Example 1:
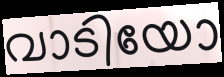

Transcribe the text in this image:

വാടിയോ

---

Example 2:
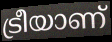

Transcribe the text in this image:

ട്രീയാണ്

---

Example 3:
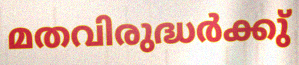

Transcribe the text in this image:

മതവിരുദ്ധർക്കു്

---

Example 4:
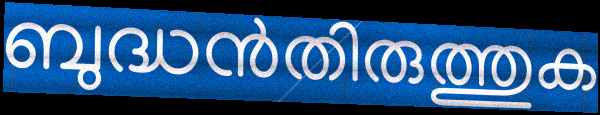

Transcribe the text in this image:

ബുദ്ധൻതിരുത്തുക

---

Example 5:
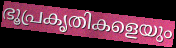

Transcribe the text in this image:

ഭൂപ്രകൃതികളെയും